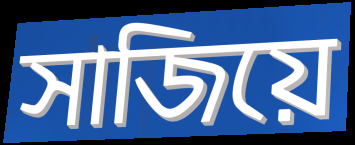
সাজিয়ে